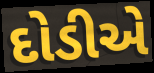
દોડીએ